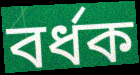
বর্ধক